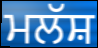
ਮਲੱਸ਼